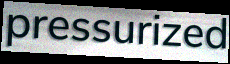
pressurized